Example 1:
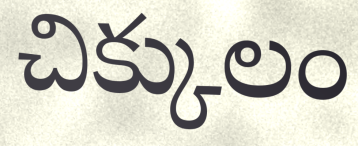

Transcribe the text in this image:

చిక్కులం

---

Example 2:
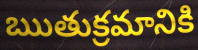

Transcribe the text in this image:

ఋతుక్రమానికి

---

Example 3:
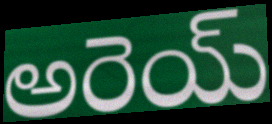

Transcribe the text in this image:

అరెయ్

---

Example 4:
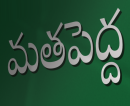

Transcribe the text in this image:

మతపెద్ద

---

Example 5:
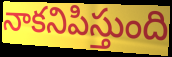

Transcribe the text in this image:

నాకనిపిస్తుంది